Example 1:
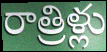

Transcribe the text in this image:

రాత్రిళ్లు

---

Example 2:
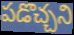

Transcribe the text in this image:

పడొచ్చని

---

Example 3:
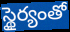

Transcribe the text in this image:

స్థైర్యంతో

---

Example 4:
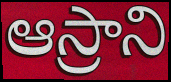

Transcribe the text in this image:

ఆస్రాని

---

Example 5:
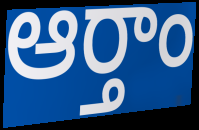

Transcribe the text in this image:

ఆర్తాం